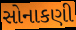
સોનાકણી